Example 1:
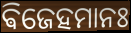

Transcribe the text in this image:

ଵିଜେହମାନଃ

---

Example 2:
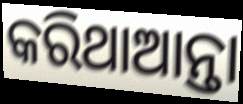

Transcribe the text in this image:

କରିଥାଆନ୍ତା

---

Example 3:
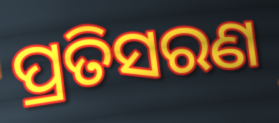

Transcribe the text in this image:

ପ୍ରତିସରଣ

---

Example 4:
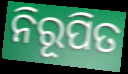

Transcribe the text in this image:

ନିରୂପିତ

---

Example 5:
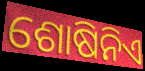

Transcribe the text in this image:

ଶୋଷିନିଏ